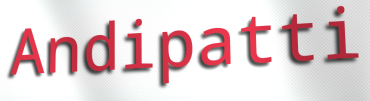
Andipatti